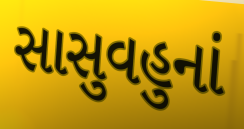
સાસુવહુનાં